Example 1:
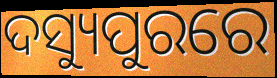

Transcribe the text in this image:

ଦସ୍ୟୁପୁରରେ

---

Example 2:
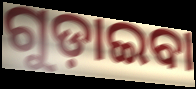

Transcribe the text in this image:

ଗୁଡ଼ାଇବା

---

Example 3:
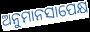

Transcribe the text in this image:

ଅନୁମାନସାପେକ୍ଷ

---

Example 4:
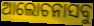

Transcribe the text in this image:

ଆଲୋଚନାସବୁ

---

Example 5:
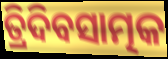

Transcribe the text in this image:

ତ୍ରିଦିବସାତ୍ମକ